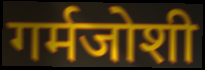
गर्मजोशी